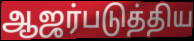
ஆஜர்படுத்திய